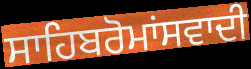
ਸਾਹਿਬਰੋਮਾਂਸਵਾਦੀ